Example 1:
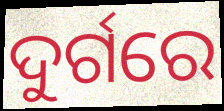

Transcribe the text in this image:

ଦୁର୍ଗରେ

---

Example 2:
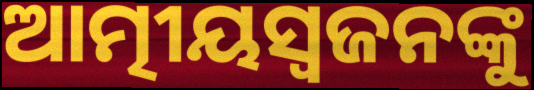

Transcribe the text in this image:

ଆତ୍ମୀୟସ୍ୱଜନଙ୍କୁ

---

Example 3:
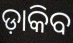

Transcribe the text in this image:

ଡ଼ାକିବ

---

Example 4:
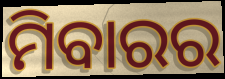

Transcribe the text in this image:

ମିବାରର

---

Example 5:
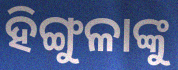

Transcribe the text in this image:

ହିଙ୍ଗୁଳାଙ୍କୁ